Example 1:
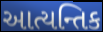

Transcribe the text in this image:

આત્યન્તિક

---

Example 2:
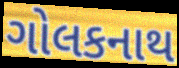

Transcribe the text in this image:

ગોલકનાથ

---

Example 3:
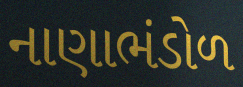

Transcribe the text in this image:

નાણાભંડોળ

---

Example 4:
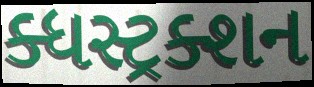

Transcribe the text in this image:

ક્ધસ્ટ્રક્શન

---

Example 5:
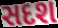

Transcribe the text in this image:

સદશ